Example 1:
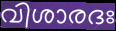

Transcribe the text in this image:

വിശാരദഃ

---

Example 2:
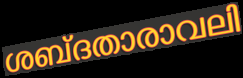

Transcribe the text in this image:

ശബ്‌ദതാരാവലി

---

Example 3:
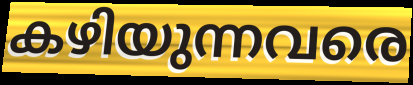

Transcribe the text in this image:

കഴിയുന്നവരെ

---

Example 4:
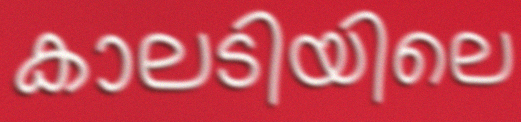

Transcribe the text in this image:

കാലടിയിലെ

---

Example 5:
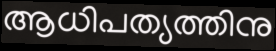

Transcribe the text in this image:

ആധിപത്യത്തിനു